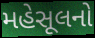
મહેસૂલનો